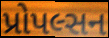
પ્રોપલ્સન